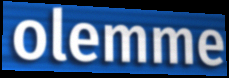
olemme